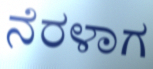
ನೆರಳಾಗ